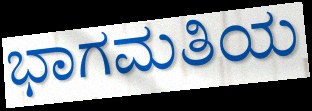
ಭಾಗಮತಿಯ